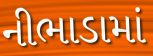
નીભાડામાં